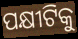
ପକ୍ଷୀଟିକୁ